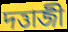
দত্তাজী